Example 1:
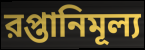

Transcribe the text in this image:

রপ্তানিমূল্য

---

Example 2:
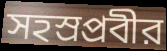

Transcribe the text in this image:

সহস্রপ্রবীর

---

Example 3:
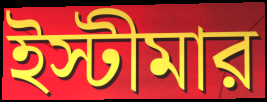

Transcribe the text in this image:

ইস্টীমার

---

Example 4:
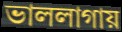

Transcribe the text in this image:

ভাললাগায়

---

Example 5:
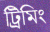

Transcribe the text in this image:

ট্রিমিং